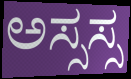
ಅಸ್ಸಸ್ಸ